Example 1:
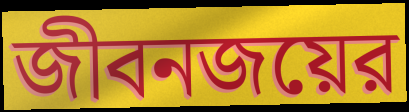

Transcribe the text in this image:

জীবনজয়ের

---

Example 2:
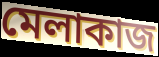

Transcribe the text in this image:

মেলাকাজ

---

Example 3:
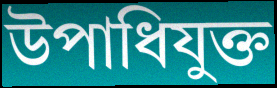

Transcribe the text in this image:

উপাধিযুক্ত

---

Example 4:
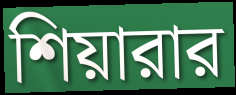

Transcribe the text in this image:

শিয়ারার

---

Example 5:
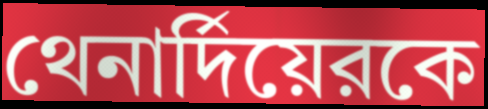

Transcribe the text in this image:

থেনার্দিয়েরকে